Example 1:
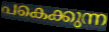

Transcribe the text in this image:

പകെക്കുന്ന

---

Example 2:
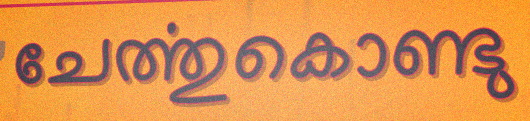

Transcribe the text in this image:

ചേൎത്തുകൊണ്ടു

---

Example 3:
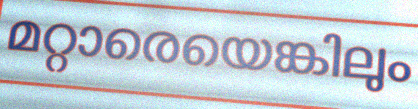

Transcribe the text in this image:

മറ്റാരെയെങ്കിലും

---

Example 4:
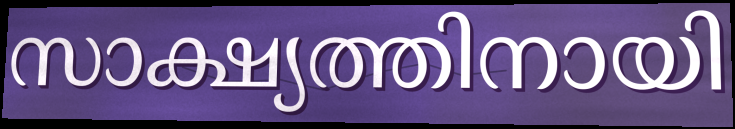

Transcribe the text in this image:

സാക്ഷ്യത്തിനായി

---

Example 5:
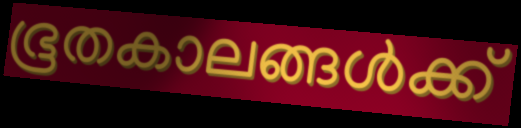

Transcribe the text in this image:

ഭൂതകാലങ്ങൾക്ക്